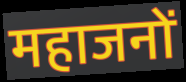
महाजनों